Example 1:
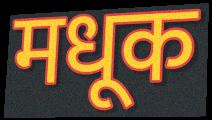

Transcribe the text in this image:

मधूक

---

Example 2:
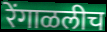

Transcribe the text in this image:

रेंगाळलीच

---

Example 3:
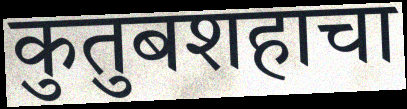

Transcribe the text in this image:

कुतुबशहाचा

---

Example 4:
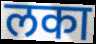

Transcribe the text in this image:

लका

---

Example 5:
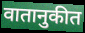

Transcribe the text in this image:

वातानुकीत